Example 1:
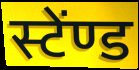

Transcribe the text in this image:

स्टेंण्ड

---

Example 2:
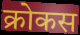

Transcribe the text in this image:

क्रोकस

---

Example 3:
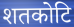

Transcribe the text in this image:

शतकोटि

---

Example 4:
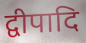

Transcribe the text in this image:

द्वीपादि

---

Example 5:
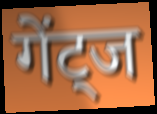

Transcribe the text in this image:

गेंट्ज